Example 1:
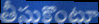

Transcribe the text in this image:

తీసుకొంటూ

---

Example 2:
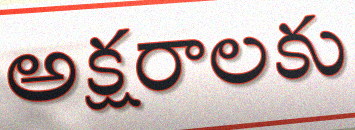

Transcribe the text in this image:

అక్షరాలకు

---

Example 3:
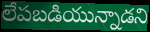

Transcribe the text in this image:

లేపబడియున్నాడని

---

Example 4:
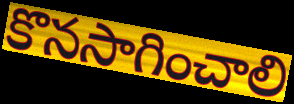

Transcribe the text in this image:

కొనసాగించాలి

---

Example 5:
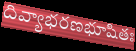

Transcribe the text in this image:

దివ్యాభరణభూషితః